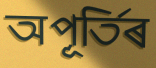
অপূৰ্তিৰ